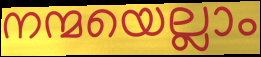
നന്മയെല്ലാം